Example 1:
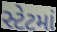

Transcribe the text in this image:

સ્ટેટમાં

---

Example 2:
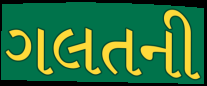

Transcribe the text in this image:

ગલતની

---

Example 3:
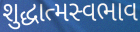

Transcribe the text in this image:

શુદ્ધાત્મસ્વભાવ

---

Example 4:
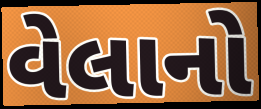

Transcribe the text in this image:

વેલાનો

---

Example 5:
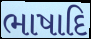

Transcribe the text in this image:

ભાષાદિ